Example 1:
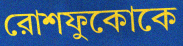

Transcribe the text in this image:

রোশফুকোকে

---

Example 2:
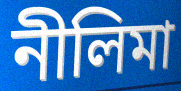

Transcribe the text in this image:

নীলিমা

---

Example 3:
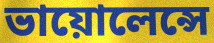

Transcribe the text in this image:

ভায়োলেন্সে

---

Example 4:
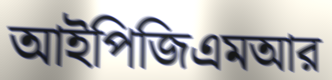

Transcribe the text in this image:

আইপিজিএমআর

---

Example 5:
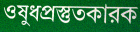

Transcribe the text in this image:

ওষুধপ্রস্তুতকারক